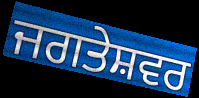
ਜਗਤੇਸ਼ਵਰ